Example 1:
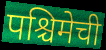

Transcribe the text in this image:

पश्चिमेची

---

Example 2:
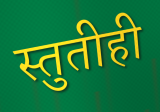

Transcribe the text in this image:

स्तुतीही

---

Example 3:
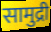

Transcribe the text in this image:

सामुद्री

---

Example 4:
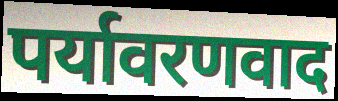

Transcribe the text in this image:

पर्यावरणवाद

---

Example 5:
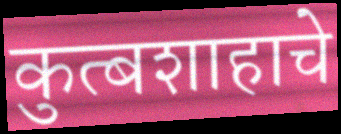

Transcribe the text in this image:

कुत्बशाहाचे